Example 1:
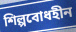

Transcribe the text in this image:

শিল্পবোধহীন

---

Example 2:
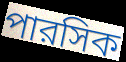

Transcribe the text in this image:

পারসিক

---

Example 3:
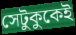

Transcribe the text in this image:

সেটুকুকেই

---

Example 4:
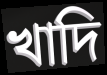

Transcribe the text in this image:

খাদি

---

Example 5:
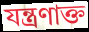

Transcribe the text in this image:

যন্ত্রণাক্ত